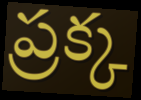
ప్రక్క